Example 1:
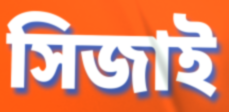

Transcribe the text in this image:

সিজাই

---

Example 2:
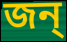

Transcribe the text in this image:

জন্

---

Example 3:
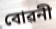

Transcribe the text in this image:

বোৱনী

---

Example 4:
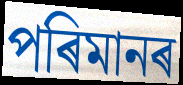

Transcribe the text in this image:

পৰিমানৰ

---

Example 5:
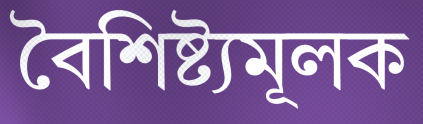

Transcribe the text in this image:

বৈশিষ্ট্যমূলক